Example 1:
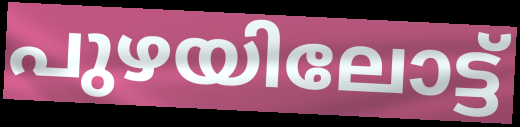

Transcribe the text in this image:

പുഴയിലോട്ട്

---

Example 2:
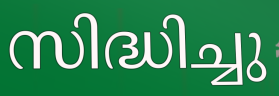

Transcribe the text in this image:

സിദ്ധിച്ചു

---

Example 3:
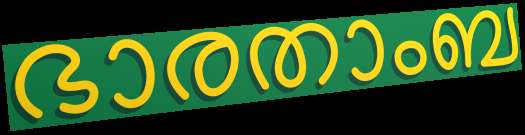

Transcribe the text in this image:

ഭാരതാംബ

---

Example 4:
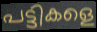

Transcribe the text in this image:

പട്ടികളെ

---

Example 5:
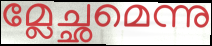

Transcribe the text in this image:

മ്ലേച്ഛമെന്നു